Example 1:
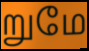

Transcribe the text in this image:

றுமே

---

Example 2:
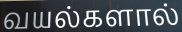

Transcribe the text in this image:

வயல்களால்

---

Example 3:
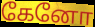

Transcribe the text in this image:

கேனோ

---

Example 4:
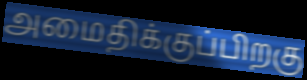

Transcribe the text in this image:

அமைதிக்குப்பிறகு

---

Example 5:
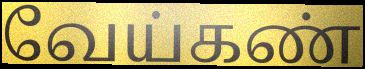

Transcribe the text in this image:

வேய்கண்